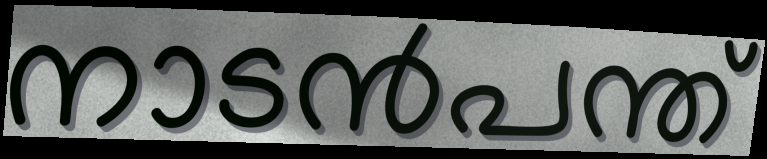
നാടൻപന്ത്